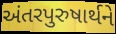
અંતરપુરુષાર્થને